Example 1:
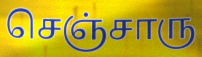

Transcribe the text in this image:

செஞ்சாரு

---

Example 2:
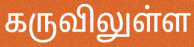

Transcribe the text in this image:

கருவிலுள்ள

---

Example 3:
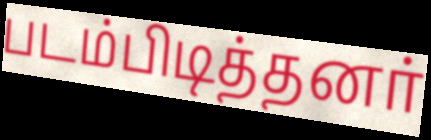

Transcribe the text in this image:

படம்பிடித்தனர்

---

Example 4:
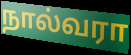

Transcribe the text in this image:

நால்வரா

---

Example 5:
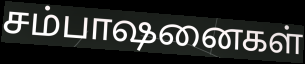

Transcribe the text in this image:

சம்பாஷனைகள்